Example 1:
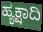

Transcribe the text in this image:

ಹ್ಯಕ್ಷಾದಿ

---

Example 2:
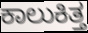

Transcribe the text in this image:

ಕಾಲುಕಿತ್ತ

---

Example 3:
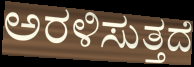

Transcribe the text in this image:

ಅರಳಿಸುತ್ತದೆ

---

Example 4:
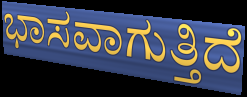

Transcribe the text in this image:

ಭಾಸವಾಗುತ್ತಿದೆ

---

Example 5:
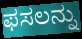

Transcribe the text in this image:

ಫಸಲನ್ನು